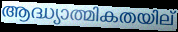
ആദ്ധ്യാത്മികതയില്